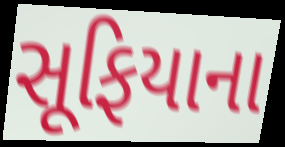
સૂફિયાના